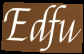
Edfu